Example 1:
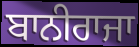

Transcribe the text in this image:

ਬਾਨੀਰਾਜਾ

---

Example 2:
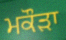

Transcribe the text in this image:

ਮਕੌੜਾ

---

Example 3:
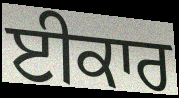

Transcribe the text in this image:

ਈਕਾਰ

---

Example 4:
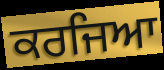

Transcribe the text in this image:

ਕਰਜਿਆ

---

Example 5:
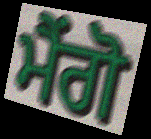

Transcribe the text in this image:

ਮੈਂਗੋ